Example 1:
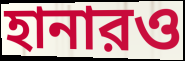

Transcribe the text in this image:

হানারও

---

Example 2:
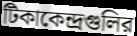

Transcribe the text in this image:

টিকাকেন্দ্রগুলির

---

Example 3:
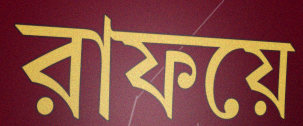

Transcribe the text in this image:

রাফয়ে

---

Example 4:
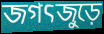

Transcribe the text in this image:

জগৎজুড়ে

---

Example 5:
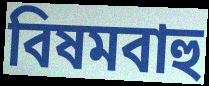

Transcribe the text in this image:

বিষমবাহু